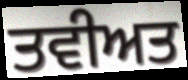
ਤਵੀਅਤ